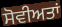
ਸੋਵੀਅਤਾਂ